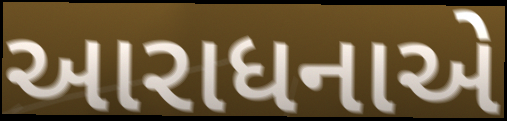
આરાધનાએ